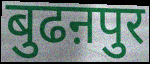
बुढऩपुर